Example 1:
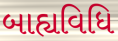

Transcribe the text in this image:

બાહ્યવિધિ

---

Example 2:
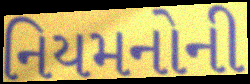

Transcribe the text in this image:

નિયમનોની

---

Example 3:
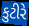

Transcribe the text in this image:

કુટીરે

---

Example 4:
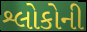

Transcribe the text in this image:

શ્લોકોની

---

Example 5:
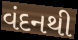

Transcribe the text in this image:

વંદનથી